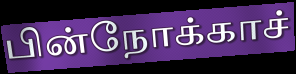
பின்நோக்காச்